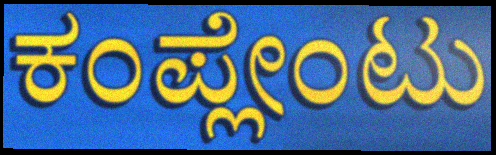
ಕಂಪ್ಲೇಂಟು